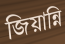
জিয়ান্নি